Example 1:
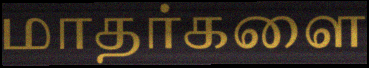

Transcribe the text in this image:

மாதர்களை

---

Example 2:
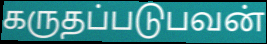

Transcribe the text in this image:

கருதப்படுபவன்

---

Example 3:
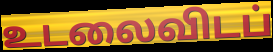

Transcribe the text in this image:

உடலைவிடப்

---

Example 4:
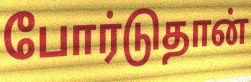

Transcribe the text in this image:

போர்டுதான்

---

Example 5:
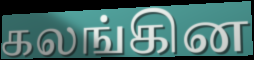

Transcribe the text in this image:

கலங்கின